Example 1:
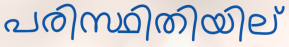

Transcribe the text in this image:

പരിസ്ഥിതിയില്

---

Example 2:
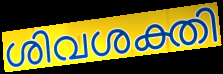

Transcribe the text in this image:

ശിവശക്തി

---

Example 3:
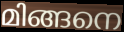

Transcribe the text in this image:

മിങ്ങനെ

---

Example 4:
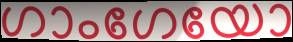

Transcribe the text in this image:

ഗാംഗേയോ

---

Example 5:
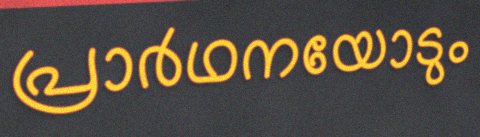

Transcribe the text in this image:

പ്രാർഥനയോടും